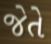
જેતે